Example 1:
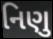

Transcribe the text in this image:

નિણુ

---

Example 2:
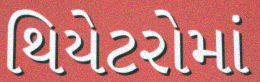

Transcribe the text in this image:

થિયેટરોમાં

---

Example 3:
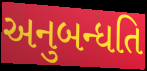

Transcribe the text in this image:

અનુબન્ધતિ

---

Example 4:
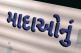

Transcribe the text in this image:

માદાઓનું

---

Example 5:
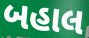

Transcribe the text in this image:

બહાલ